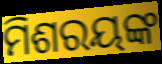
ମିଶରୟଙ୍କ